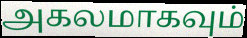
அகலமாகவும்